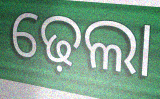
ଢ଼େଲା